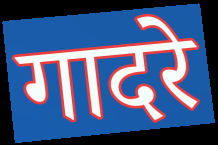
गादरे